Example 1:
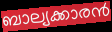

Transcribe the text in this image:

ബാല്യക്കാരൻ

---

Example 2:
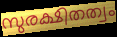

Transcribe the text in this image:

സുരക്ഷിതത്വം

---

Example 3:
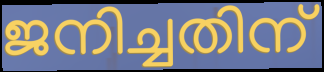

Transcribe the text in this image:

ജനിച്ചതിന്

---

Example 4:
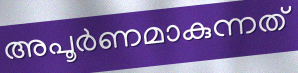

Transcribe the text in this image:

അപൂർണമാകുന്നത്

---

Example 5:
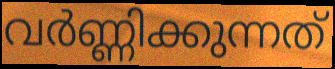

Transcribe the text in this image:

വർണ്ണിക്കുന്നത്